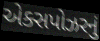
એક્સપોઝરનું